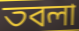
তবলা